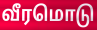
வீரமொடு